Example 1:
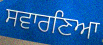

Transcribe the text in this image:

ਸਵਾਰਣਿਆ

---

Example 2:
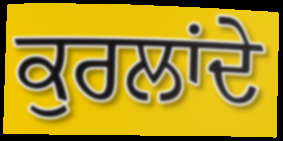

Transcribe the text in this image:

ਕੁਰਲਾਂਦੇ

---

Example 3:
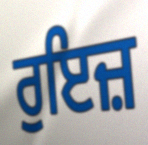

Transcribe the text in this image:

ਰੁਇਜ਼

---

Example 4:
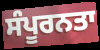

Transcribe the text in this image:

ਸੰਪੂਰਨਤਾ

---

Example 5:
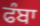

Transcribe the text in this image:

ਫੰਬਾ